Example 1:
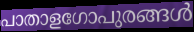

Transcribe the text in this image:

പാതാളഗോപുരങ്ങൾ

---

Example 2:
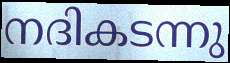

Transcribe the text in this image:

നദികടന്നു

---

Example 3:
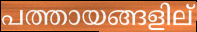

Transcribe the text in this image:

പത്തായങ്ങളില്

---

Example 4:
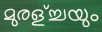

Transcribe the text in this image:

മുരള്ച്ചയും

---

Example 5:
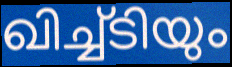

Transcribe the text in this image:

ഖിച്ച്ടിയും